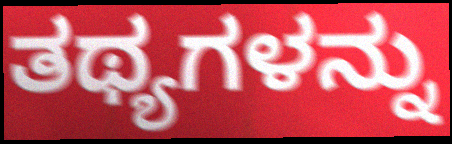
ತಥ್ಯಗಳನ್ನು